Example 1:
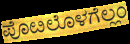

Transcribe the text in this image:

ಪೊೞಲೊಳಗೆಲ್ಲಂ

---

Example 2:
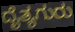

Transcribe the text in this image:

ದೈತ್ಯಗುರು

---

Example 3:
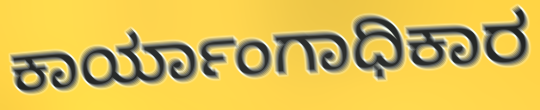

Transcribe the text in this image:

ಕಾರ್ಯಾಂಗಾಧಿಕಾರ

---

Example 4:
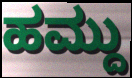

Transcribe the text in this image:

ಹಮ್ದು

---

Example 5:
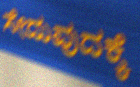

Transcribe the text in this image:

ಸೇದುವುದಕ್ಕೆ